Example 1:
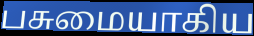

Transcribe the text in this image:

பசுமையாகிய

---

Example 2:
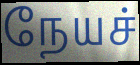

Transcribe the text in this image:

நேயச்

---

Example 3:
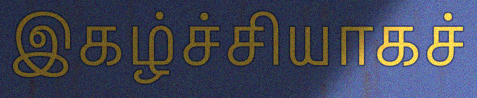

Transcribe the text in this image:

இகழ்ச்சியாகச்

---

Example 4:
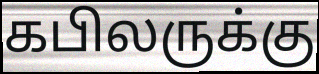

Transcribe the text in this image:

கபிலருக்கு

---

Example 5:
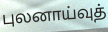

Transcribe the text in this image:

புலனாய்வுத்